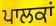
ਪਾਲਕਾਂ